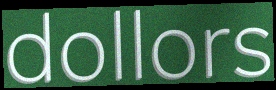
dollors